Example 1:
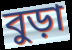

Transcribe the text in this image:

বুড়া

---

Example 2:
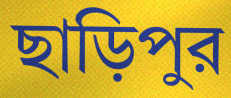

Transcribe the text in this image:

ছাড়িপুর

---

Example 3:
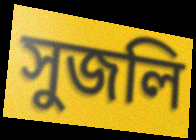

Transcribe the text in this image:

সুজলি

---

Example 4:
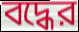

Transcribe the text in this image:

বদ্ধের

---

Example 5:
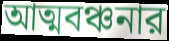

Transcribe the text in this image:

আত্মবঞ্চনার